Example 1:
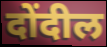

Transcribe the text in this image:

दोंदील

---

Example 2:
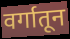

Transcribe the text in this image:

वर्गातून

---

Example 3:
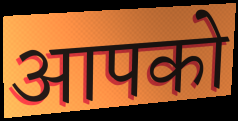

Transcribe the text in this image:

आपको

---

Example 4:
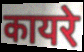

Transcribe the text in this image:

कायरे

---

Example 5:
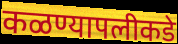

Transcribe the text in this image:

कळण्यापलीकडे